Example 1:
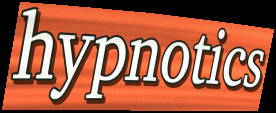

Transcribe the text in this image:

hypnotics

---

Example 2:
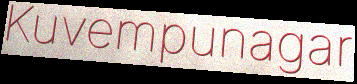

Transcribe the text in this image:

Kuvempunagar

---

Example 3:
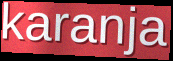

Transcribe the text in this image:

karanja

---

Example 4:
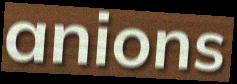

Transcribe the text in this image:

anions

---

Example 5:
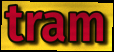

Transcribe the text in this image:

tram